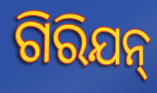
ଗିରିଯନ୍